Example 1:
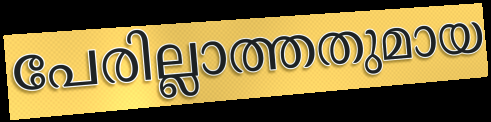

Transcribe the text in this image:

പേരില്ലാത്തതുമായ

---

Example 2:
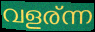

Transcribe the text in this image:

വളര്ന്ന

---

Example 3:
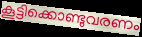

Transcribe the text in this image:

കൂട്ടിക്കൊണ്ടുവരണം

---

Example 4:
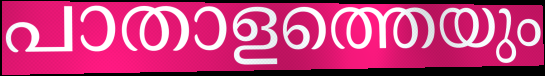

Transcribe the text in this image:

പാതാളത്തെയും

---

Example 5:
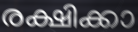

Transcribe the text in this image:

രക്ഷിക്കാ